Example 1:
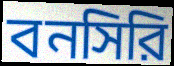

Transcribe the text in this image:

বনসিরি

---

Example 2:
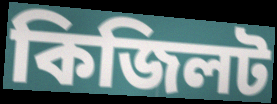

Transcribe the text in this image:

কিজিলট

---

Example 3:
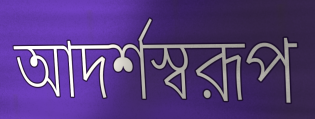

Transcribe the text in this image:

আদর্শস্বরূপ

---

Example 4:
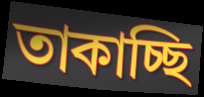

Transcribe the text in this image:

তাকাচ্ছি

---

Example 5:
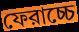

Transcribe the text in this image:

ফেরাচ্চে